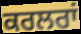
ਕਰਲਰਾਂ